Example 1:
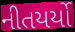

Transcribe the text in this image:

નીતયર્યો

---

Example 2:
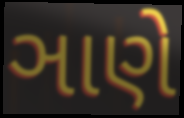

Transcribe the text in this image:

ઞાણે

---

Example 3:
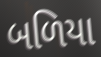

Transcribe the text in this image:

બળિયા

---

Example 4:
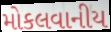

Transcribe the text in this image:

મોકલવાનીય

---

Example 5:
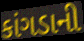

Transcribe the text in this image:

કાંગડાની